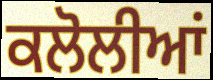
ਕਲੋਲੀਆਂ